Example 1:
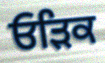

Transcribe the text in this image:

ਓੜਿਕ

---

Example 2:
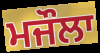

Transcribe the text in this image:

ਮਜੌਲਾ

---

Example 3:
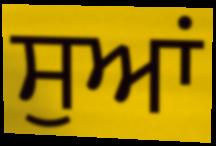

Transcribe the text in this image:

ਸੁਆਂ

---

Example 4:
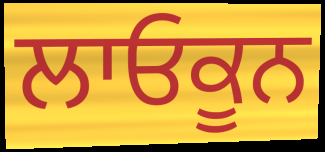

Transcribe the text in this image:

ਲਾਓਕੂਨ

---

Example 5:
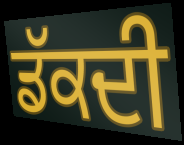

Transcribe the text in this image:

ਡੱਕਦੀ